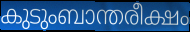
കുടുംബാന്തരീക്ഷം